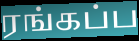
ரங்கப்ப